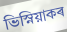
ভিস্নিয়াকৰ